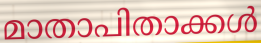
മാതാപിതാക്കൾ